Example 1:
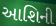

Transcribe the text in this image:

આશિની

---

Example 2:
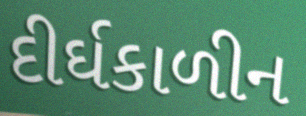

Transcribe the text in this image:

દીર્ઘકાળીન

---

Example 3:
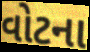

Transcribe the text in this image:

વોટના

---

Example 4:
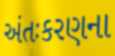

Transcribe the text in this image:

અંતઃકરણના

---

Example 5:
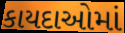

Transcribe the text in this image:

કાયદાઓમાં